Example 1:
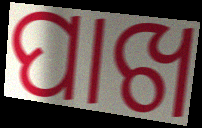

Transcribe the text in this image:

ପାଖ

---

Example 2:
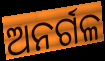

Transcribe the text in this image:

ଅନର୍ଗଳ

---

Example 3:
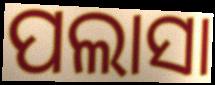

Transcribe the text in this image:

ପଲାସା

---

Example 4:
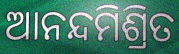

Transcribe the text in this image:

ଆନନ୍ଦମିଶ୍ରିତ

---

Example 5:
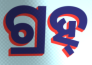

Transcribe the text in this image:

ଗ୍ରହ୍